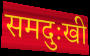
समदुःखी